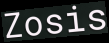
Zosis